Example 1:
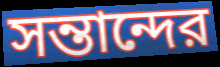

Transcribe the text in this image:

সন্তান্দের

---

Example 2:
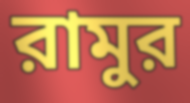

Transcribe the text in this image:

রামুর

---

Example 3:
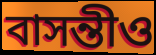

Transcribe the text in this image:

বাসন্তীও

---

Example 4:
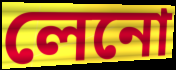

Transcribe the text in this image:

লেনো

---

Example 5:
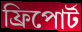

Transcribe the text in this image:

ফ্রিপোর্ট